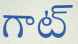
గాట్